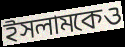
ইসলামকেও